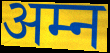
अम्न